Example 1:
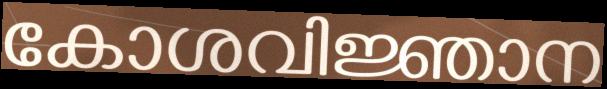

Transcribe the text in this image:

കോശവിജ്ഞാന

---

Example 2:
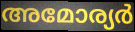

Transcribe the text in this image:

അമോര്യർ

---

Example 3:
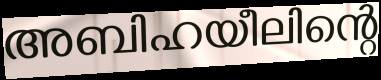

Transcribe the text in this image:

അബിഹയീലിന്റെ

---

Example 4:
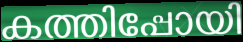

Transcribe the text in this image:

കത്തിപ്പോയി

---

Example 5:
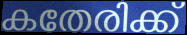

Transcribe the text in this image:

കതേരിക്ക്